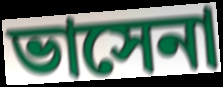
ভাসেনা